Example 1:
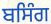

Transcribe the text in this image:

ਬਸਿੰਗ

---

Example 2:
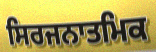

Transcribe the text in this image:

ਸਿਰਜਨਾਤਮਿਕ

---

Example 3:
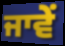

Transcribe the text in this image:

ਜਾਵੇਂ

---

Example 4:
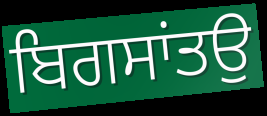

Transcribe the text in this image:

ਬਿਗਸਾਂਤਉ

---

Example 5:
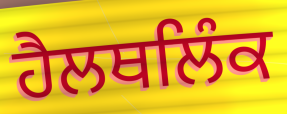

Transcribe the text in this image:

ਹੈਲਥਲਿੰਕ